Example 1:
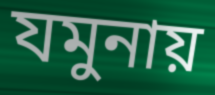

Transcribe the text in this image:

যমুনায়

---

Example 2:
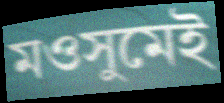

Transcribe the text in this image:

মওসুমেই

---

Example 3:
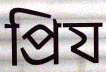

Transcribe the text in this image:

প্রিয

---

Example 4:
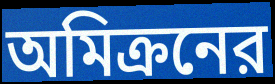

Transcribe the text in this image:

অমিক্রনের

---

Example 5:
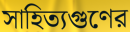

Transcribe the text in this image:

সাহিত্যগুণের